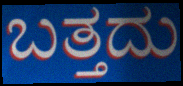
ಬತ್ತದು